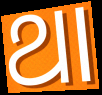
ଥା